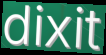
dixit